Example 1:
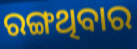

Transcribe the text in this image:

ରଙ୍ଗଥିବାର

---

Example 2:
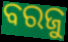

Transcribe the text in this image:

ବରଜୁ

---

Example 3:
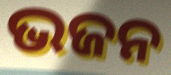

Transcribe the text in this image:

ଭଜନ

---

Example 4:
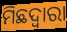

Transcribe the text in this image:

ମିଛଦ୍ଵାରା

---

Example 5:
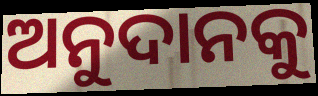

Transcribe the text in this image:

ଅନୁଦାନକୁ